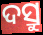
ଦସ୍ରୁ